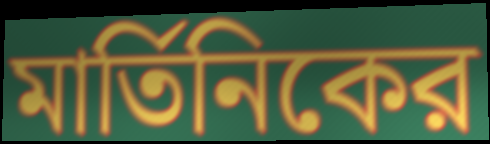
মার্তিনিকের